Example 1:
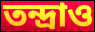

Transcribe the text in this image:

তন্দ্রাও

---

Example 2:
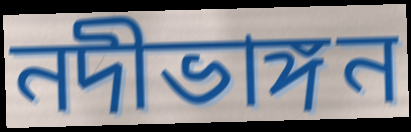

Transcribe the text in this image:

নদীভাঙ্গন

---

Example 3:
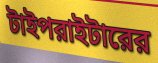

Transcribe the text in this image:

টাইপরাইটারের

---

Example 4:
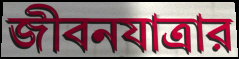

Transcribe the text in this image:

জীবনযাত্রার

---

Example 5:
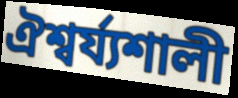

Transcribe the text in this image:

ঐশ্বর্য্যশালী